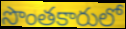
సొంతకారులో